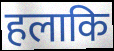
हलाकि